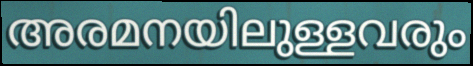
അരമനയിലുള്ളവരും